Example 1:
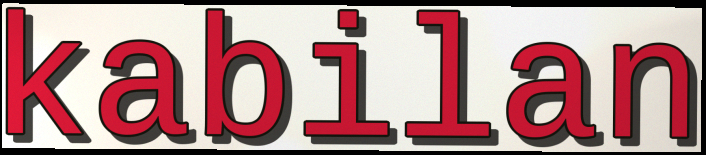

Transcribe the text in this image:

kabilan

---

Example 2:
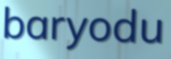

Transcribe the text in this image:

baryodu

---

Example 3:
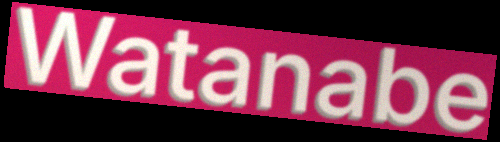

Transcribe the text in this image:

Watanabe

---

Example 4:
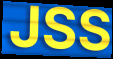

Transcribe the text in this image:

JSS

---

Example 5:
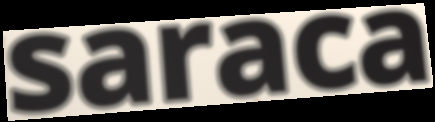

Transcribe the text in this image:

saraca